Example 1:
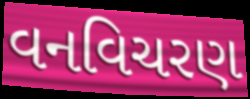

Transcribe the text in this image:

વનવિચરણ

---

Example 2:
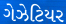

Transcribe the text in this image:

ગેઝેટિયર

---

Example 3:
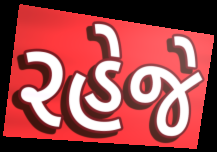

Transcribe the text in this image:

રહેજે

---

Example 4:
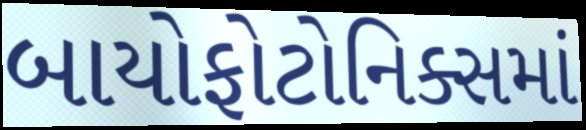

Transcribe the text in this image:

બાયોફોટોનિક્સમાં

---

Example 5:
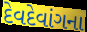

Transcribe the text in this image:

દેવદેવાંગના